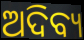
ଅଦିବ୍ୟ